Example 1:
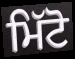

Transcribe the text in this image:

ਮਿੱਟੋ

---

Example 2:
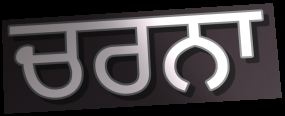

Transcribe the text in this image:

ਚਰਨਾ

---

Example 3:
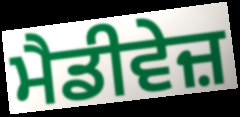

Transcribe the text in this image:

ਮੈਡੀਵੇਜ਼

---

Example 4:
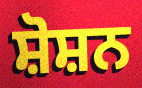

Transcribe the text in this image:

ਸ਼ੋਸ਼ਨ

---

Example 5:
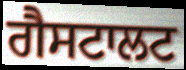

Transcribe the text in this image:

ਗੈਸਟਾਲਟ